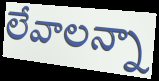
లేవాలన్నా